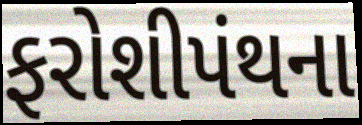
ફરોશીપંથના